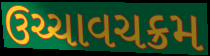
ઉચ્ચાવચક્રમ